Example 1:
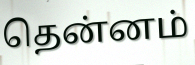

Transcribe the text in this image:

தென்னம்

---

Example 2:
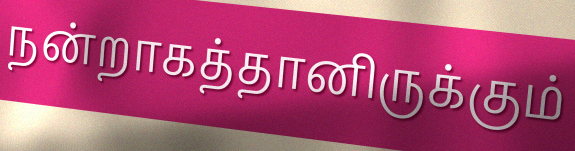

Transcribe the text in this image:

நன்றாகத்தானிருக்கும்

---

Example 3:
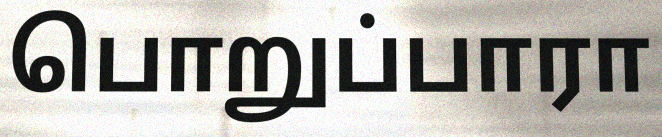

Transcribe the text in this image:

பொறுப்பாரா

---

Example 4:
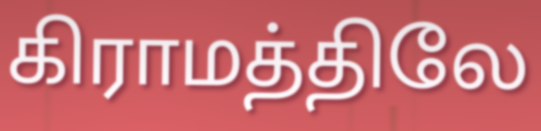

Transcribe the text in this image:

கிராமத்திலே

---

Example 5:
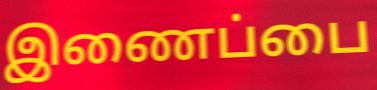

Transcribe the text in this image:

இணைப்பை